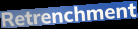
Retrenchment